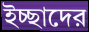
ইচ্ছাদের